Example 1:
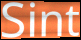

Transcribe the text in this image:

Sint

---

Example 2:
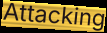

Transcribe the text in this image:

Attacking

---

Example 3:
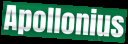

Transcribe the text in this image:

Apollonius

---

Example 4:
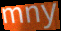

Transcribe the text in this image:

mny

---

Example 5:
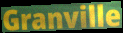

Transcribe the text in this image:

Granville